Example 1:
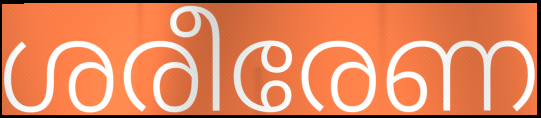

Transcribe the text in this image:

ശരീരേണ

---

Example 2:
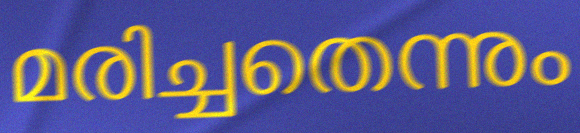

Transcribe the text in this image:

മരിച്ചതെന്നും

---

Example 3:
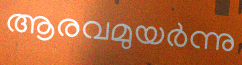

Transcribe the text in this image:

ആരവമുയർന്നു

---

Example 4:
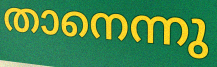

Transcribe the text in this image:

താനെന്നു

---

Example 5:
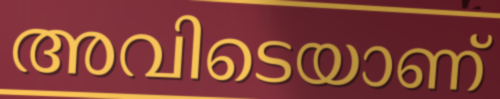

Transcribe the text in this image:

അവിടെയാണ്